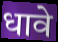
धावे